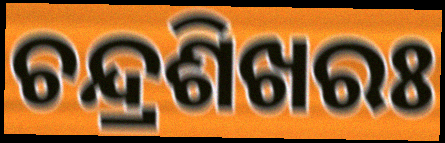
ଚନ୍ଦ୍ରଶିଖରଃ